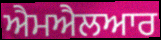
ਐਮਐਲਆਰ